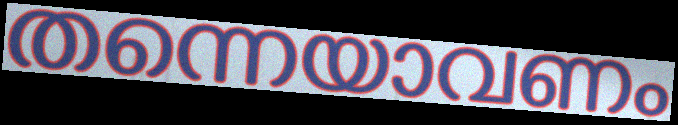
തന്നെയാവണം